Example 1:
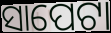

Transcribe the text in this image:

ସାପେଟା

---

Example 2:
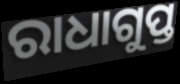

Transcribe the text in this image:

ରାଧାଗୁପ୍ତ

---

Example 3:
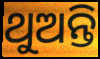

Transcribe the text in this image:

ଥୁଅନ୍ତି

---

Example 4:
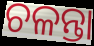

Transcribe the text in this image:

ଚଳନ୍ତା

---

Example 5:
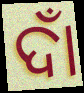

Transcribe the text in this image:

ଦାଁ